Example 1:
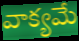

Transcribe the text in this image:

వాక్యమే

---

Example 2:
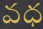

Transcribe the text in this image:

వధ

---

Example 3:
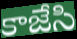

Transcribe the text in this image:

కాజేసి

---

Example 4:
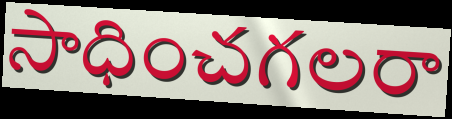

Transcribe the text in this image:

సాధించగలరా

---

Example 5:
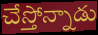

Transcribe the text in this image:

చేస్తోన్నాడు